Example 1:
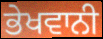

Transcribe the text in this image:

ਭੇਖਵਾਨੀ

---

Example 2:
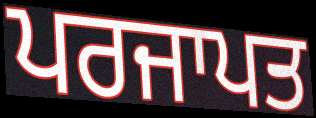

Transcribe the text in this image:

ਪਰਜਾਪਤ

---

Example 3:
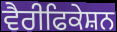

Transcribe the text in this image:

ਵੈਰੀਫਿਕੇਸ਼ਨ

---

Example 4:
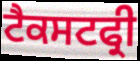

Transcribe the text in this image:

ਟੈਕਸਟਫ੍ਰੀ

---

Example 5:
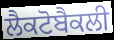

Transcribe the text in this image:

ਲੈਕਟੋਬੈਕਲੀ